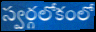
స్వర్గలోకంలో